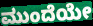
ಮುಂದೆಯೇ